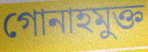
গোনাহমুক্ত